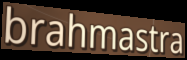
brahmastra